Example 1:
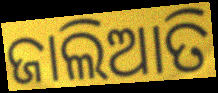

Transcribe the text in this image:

ଜାଲିଆତି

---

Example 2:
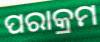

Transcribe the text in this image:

ପରାକ୍ରମ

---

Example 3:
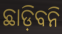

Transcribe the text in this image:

ଛାଡ଼ିବନି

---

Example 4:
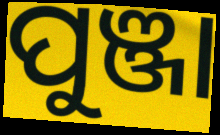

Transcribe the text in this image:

ପୁଞ୍ଜା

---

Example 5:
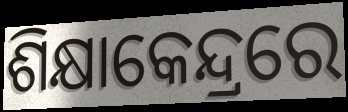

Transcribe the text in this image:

ଶିକ୍ଷାକେନ୍ଦ୍ରରେ